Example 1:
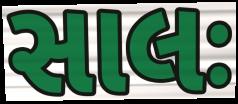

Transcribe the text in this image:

સાલઃ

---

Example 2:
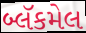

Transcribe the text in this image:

બ્લૅકમેલ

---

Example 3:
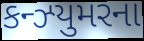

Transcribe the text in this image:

કન્ઝ્યુમરના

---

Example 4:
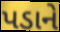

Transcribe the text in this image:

પડાને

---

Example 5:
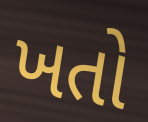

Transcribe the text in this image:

ખતો